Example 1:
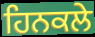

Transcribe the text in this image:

ਹਿਨਕਲੇ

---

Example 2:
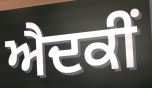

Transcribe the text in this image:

ਐਦਕੀਂ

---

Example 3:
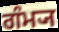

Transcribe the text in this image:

ਗੰਮ੍ਯ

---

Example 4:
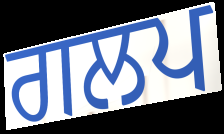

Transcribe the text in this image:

ਗਲਪ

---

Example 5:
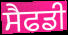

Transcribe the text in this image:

ਸੈਫਡੀ